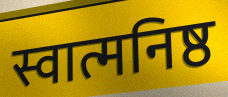
स्वात्मनिष्ठ